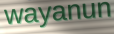
wayanun